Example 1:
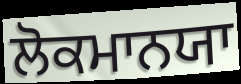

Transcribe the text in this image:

ਲੋਕਮਾਨਯਾ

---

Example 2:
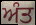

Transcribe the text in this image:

ਅੰਤ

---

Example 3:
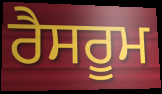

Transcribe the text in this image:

ਰੈਸਰੂਮ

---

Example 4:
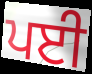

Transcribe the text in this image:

ਪਈ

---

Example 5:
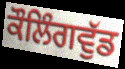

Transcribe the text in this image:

ਕੌਲਿੰਗਵੁੱਡ